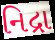
નિદ્રા